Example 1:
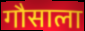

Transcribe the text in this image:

गौसाला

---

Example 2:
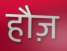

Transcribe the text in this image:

हौज़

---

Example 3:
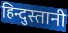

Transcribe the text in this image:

हिन्‍दुस्‍तानी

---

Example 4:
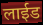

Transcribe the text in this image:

लाईड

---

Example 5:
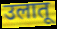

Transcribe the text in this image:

उलातू